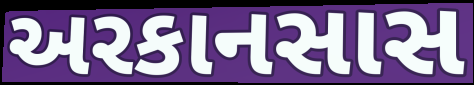
અરકાનસાસ